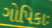
ગોપિકાઃ